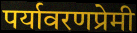
पर्यावरणप्रेमी